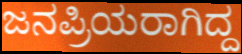
ಜನಪ್ರಿಯರಾಗಿದ್ದ